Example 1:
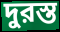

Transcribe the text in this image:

দুরস্ত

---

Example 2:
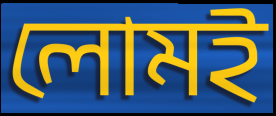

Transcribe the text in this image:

লোমই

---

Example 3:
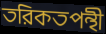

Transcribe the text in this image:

তরিকতপন্থী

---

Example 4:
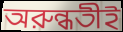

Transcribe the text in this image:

অরুন্ধতীই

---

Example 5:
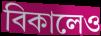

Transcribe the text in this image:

বিকালেও